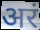
अरं